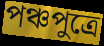
পঞ্চপুত্রে